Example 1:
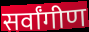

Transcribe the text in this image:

सर्वांगीण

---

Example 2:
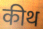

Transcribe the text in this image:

कीथ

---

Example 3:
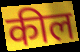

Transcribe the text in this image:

कील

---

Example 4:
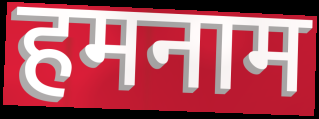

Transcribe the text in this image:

हमनाम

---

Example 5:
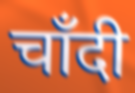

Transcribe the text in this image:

चाँदी